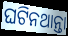
ଘଟିନଥାନ୍ତା